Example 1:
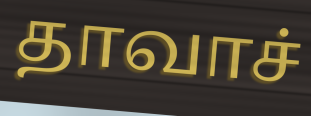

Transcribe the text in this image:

தாவாச்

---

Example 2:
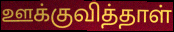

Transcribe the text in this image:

ஊக்குவித்தாள்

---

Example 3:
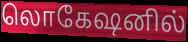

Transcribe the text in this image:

லொகேஷனில்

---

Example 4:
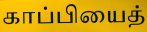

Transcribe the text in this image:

காப்பியைத்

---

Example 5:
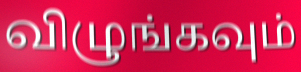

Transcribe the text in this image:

விழுங்கவும்